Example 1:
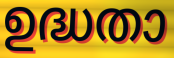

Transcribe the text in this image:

ഉദ്ധതാ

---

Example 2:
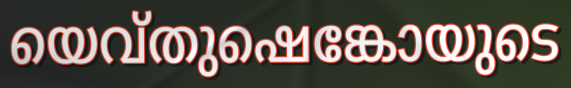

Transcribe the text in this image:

യെവ്തുഷെങ്കോയുടെ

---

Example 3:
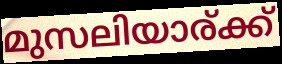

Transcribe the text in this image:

മുസലിയാര്ക്ക്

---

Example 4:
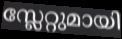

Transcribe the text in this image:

സ്ലേറ്റുമായി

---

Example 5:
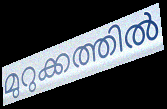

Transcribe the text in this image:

മുറുക്കത്തിൽ